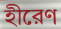
হীরেণ